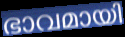
ഭാവമായി